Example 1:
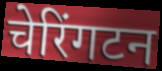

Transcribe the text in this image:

चेरिंगटन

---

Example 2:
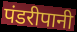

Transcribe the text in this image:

पंडरीपानी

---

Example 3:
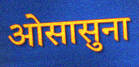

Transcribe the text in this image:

ओसासुना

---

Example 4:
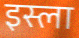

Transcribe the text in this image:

इस्ला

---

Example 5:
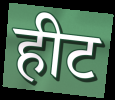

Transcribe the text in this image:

हीट